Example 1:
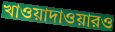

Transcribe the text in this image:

খাওয়াদাওয়ারও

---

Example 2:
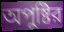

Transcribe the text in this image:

অপুষ্টির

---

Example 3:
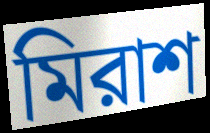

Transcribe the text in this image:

মিরাশ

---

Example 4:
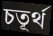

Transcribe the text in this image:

চতূর্থ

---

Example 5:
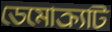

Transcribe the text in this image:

ডেমোক্র্যাট